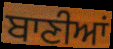
ਬਾਣੀਆਂ